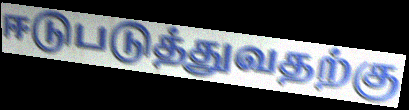
ஈடுபடுத்துவதற்கு